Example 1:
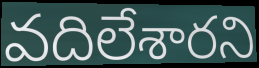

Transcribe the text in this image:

వదిలేశారని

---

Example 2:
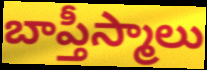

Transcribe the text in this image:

బాప్తీస్మాలు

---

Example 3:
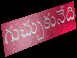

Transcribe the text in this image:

గుచ్చుకునేది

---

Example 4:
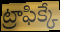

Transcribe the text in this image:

ట్రాఫిక్కే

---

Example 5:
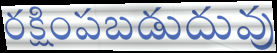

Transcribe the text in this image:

రక్షింపబడుదువు